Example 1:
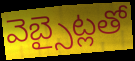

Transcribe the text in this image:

వెబ్సైట్లతో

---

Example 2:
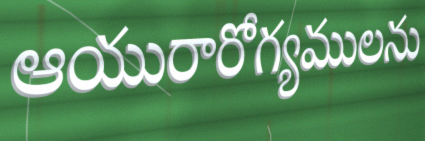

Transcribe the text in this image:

ఆయురారోగ్యములను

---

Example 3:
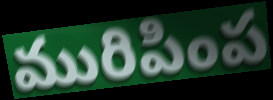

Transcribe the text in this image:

మురిపింప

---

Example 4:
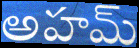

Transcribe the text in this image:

అహమ్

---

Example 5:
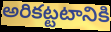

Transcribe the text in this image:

అరికట్టటానికి